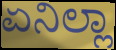
ಏನಿಲ್ಲಾ